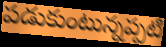
పడుకుంటున్నప్పటి